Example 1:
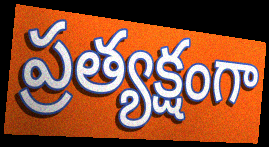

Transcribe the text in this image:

ప్రత్యక్షంగా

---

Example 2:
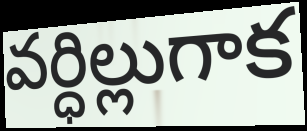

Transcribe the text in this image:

వర్ధిల్లుగాక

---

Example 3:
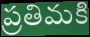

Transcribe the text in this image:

ప్రతిమకి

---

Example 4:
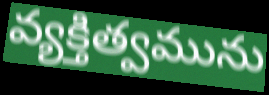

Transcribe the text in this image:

వ్యక్తిత్వమును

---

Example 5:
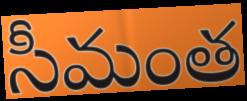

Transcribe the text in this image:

సీమంత